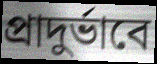
প্রাদুর্ভাবে